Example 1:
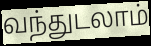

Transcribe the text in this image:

வந்துடலாம்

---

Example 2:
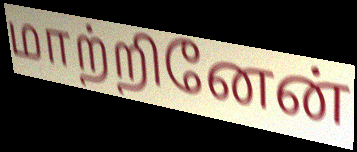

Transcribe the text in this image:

மாற்றினேன்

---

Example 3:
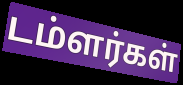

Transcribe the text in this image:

டம்ளர்கள்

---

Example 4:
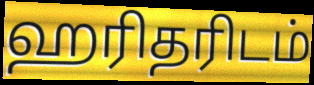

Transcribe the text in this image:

ஹரிதரிடம்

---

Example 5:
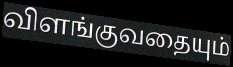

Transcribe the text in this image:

விளங்குவதையும்